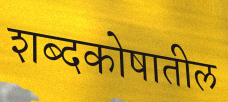
शब्दकोषातील